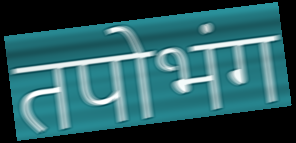
तपोभंग